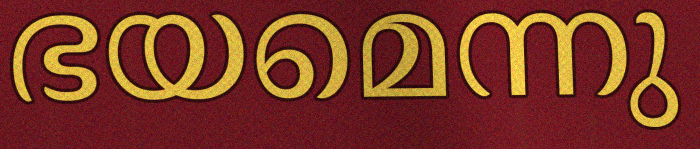
ഭയമെന്നു